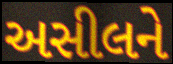
અસીલને